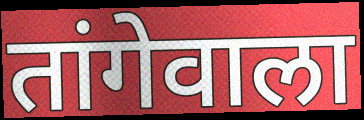
तांगेवाला